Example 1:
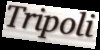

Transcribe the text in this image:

Tripoli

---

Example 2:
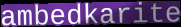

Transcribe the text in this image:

ambedkarite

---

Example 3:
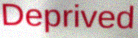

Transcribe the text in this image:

Deprived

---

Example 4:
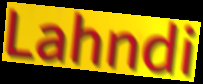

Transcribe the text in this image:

Lahndi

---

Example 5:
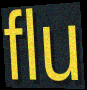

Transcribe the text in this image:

flu